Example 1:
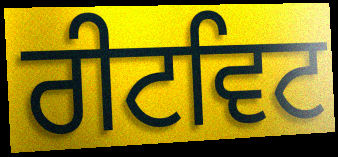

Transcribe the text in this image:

ਰੀਟਵਿਟ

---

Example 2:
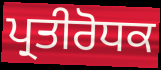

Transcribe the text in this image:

ਪ੍ਰਤੀਰੋਧਕ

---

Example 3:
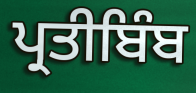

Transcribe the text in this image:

ਪ੍ਰਤੀਬਿੰਬ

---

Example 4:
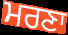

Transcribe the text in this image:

ਮਰਣਾ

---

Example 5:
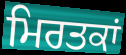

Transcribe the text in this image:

ਮਿਰਤਕਾਂ